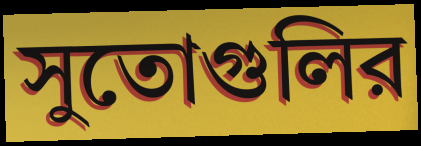
সুতোগুলির